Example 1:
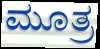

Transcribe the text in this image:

ಮೂತ್ರ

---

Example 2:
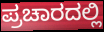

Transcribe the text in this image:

ಪ್ರಚಾರದಲ್ಲಿ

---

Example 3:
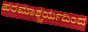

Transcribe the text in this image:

ಪರಮಾಶ್ಚರ್ಯದಿಂದ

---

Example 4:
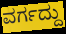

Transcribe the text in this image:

ವರ್ಗದ್ದು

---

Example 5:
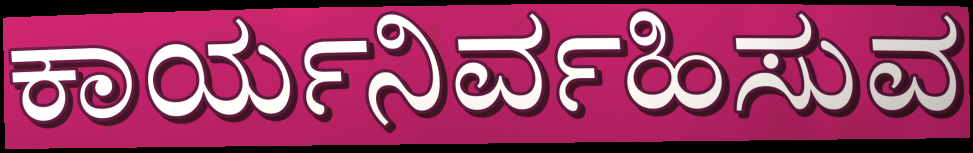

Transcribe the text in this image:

ಕಾರ್ಯನಿರ್ವಹಿಸುವ